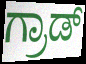
ಗ್ರಾಡ್